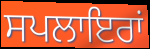
ਸਪਲਾਇਰਾਂ